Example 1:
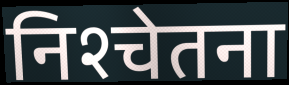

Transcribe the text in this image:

निश्चेतना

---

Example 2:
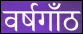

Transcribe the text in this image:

वर्षगाँठ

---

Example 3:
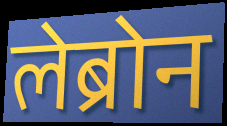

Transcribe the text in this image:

लेब्रोन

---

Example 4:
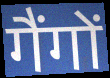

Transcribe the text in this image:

गैंगों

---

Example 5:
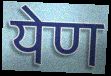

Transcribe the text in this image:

येण